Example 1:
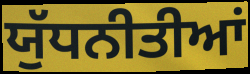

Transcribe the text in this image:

ਯੁੱਧਨੀਤੀਆਂ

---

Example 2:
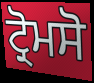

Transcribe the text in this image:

ਟ੍ਰੋਮਸੋ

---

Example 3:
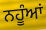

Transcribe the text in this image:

ਨਹੂੰਆਂ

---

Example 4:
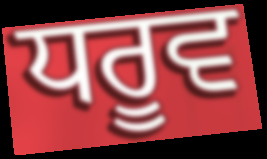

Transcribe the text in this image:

ਧਰੂਵ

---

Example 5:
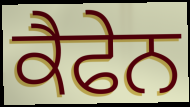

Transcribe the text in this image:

ਕੈਫੇਨ